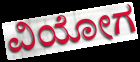
ವಿಯೋಗ